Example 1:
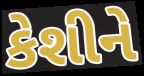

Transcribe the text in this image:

કેશીને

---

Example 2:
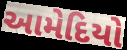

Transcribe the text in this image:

આમેદિયો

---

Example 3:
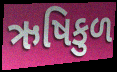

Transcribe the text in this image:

ઋષિકુળ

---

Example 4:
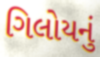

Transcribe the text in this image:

ગિલોયનું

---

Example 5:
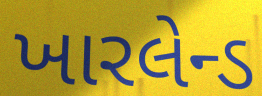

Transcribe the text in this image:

ખારલેન્ડ